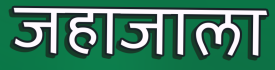
जहाजाला